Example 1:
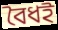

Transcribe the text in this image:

বৈধই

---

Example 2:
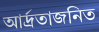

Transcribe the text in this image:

আর্দ্রতাজনিত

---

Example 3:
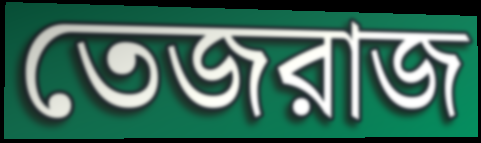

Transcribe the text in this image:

তেজরাজ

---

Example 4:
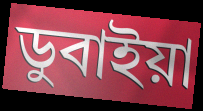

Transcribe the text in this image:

ডুবাইয়া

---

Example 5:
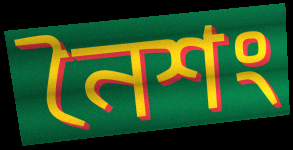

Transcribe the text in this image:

নৈশং